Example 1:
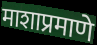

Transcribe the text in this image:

माशाप्रमाणे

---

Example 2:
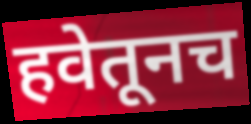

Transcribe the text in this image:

हवेतूनच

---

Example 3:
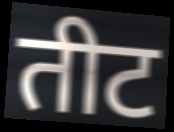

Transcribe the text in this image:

तीट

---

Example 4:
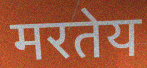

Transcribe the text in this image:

मरतेय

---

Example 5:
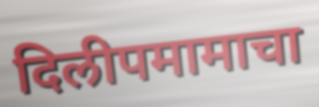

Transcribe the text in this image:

दिलीपमामाचा